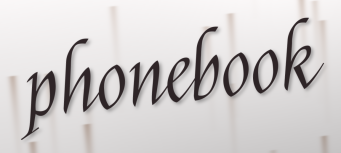
phonebook